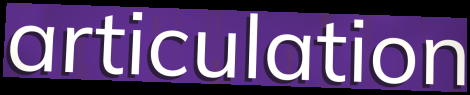
articulation